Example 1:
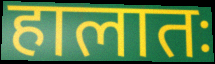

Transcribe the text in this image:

हालातः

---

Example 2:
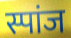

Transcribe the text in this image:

स्पांज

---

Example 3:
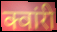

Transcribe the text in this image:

क्वांरी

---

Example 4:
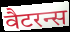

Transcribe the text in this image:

वैटरन्स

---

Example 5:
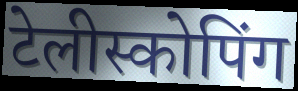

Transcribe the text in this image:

टेलीस्कोपिंग